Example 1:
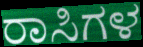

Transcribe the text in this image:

ರಾಸಿಗಳ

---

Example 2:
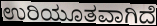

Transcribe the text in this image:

ಉರಿಯೂತವಾಗಿದೆ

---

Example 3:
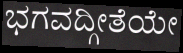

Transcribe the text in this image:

ಭಗವದ್ಗೀತೆಯೇ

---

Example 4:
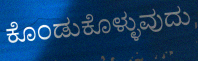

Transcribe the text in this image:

ಕೊಂಡುಕೊಳ್ಳುವುದು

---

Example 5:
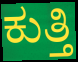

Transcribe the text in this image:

ಕುತ್ತಿ